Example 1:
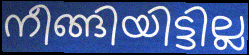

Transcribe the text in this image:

നീങ്ങിയിട്ടില്ല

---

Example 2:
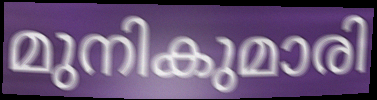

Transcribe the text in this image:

മുനികുമാരി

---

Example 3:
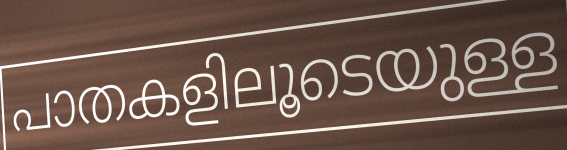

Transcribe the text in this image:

പാതകളിലൂടെയുള്ള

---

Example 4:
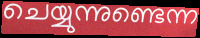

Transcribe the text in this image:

ചെയ്യുന്നുണ്ടെന്ന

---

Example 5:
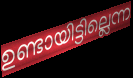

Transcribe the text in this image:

ഉണ്ടായിട്ടില്ലെന്ന